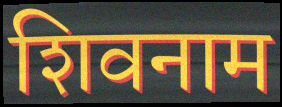
शिवनाम